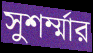
সুশর্ম্মার